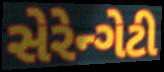
સેરેન્ગેટી